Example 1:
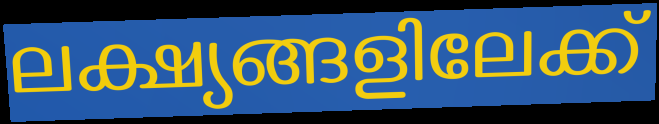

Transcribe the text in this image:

ലക്ഷ്യങ്ങളിലേക്ക്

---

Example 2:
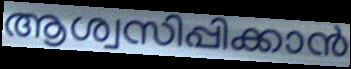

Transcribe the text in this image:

ആശ്വസിപ്പിക്കാൻ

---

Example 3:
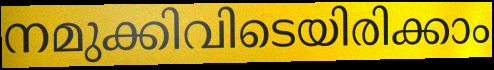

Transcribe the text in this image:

നമുക്കിവിടെയിരിക്കാം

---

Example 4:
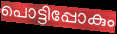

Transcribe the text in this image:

പൊട്ടിപ്പോകും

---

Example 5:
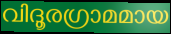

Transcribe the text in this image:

വിദൂരഗ്രാമമായ